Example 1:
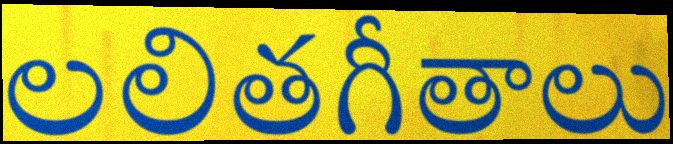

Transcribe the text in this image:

లలితగీతాలు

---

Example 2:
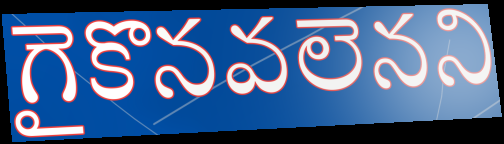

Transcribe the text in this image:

గైకొనవలెనని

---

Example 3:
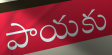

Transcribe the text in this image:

పాయకు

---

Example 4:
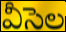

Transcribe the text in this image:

వీసెల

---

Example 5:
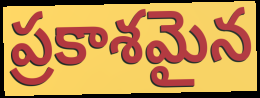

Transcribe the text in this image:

ప్రకాశమైన